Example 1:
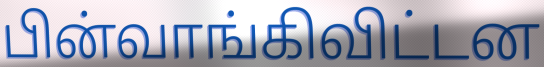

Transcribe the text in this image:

பின்வாங்கிவிட்டன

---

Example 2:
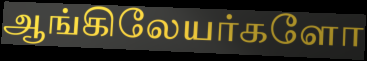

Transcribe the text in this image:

ஆங்கிலேயர்களோ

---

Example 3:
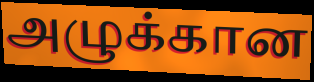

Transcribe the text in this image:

அழுக்கான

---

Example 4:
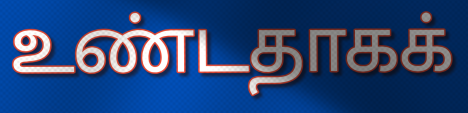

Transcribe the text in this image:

உண்டதாகக்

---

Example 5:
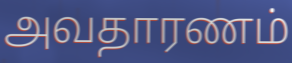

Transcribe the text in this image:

அவதாரணம்